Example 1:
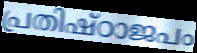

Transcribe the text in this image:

പ്രതിഷ്ഠാജപം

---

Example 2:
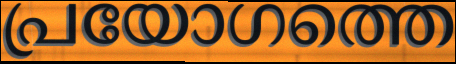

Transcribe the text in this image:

പ്രയോഗത്തെ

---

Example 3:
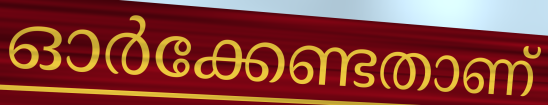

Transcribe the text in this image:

ഓർക്കേണ്ടതാണ്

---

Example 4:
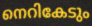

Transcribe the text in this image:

നെറികേടും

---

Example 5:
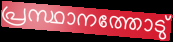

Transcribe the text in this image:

പ്രസ്ഥാനത്തോടു്